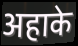
अहाके